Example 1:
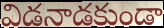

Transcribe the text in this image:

విడనాడకుండా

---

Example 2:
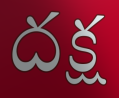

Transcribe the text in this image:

దక్ష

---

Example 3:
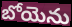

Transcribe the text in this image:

బోయెను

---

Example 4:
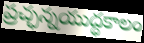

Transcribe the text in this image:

ప్రచ్ఛన్నయుద్ధకాలం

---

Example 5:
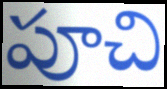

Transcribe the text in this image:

పూచి